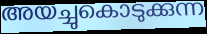
അയച്ചുകൊടുക്കുന്ന